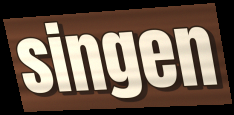
singen